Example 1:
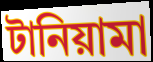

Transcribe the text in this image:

টানিয়ামা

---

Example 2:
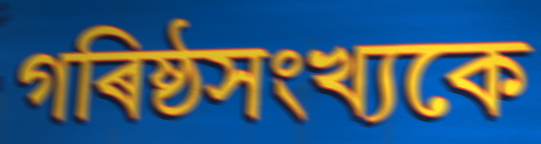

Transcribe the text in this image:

গৰিষ্ঠসংখ্যকে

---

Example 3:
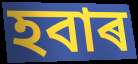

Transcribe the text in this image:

হবাৰ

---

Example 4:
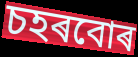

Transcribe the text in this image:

চহৰবোৰ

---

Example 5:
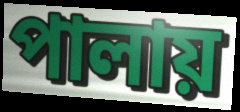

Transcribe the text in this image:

পালায়